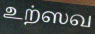
உற்ஸவ